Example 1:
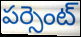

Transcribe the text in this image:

పర్సెంట్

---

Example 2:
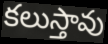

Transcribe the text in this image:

కలుస్తావు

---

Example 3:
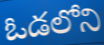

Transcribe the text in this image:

ఓడలోని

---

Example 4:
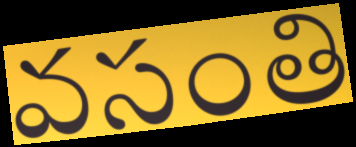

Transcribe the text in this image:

వసంతి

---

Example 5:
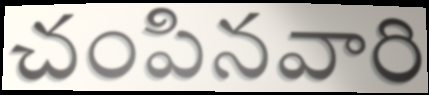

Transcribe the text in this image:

చంపినవారి